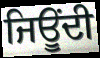
ਜਿਊਂਦੀ